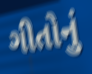
ગીતોનું